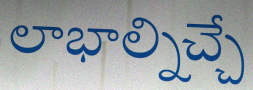
లాభాల్నిచ్చే